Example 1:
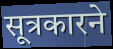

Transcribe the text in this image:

सूत्रकारने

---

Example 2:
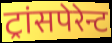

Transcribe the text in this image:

ट्रांसपेरेन्ट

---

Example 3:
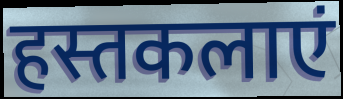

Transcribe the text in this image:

हस्तकलाएं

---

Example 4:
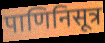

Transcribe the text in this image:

पाणिनिसूत्र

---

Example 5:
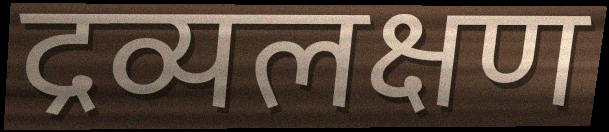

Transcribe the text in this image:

द्रव्यलक्षण